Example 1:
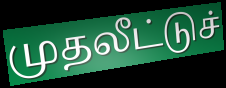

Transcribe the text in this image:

முதலீட்டுச்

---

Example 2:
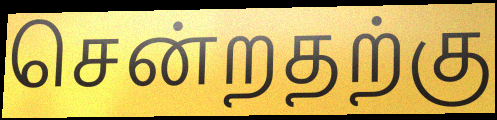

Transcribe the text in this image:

சென்றதற்கு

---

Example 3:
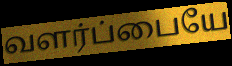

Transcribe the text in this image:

வளர்ப்பையே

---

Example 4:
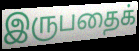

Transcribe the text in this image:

இருபதைக்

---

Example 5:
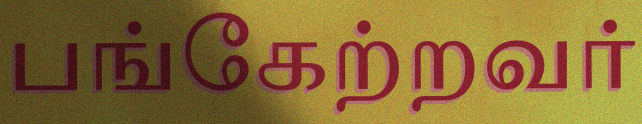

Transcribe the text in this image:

பங்கேற்றவர்